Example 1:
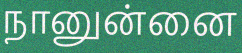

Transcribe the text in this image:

நானுன்னை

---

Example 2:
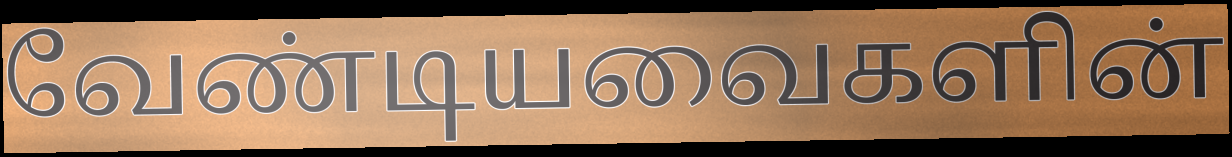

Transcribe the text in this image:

வேண்டியவைகளின்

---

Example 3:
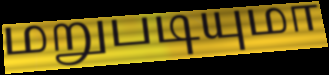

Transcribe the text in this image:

மறுபடியுமா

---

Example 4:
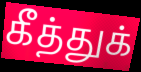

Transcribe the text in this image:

கீத்துக்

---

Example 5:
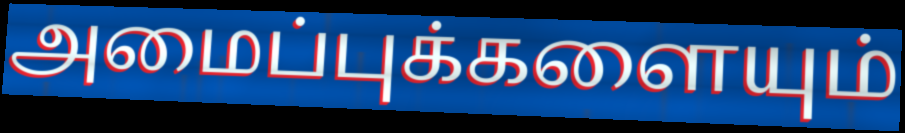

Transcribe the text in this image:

அமைப்புக்களையும்